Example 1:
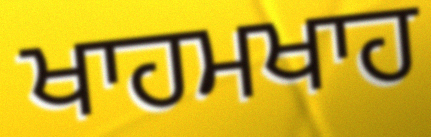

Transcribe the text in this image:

ਖਾਹਮਖਾਹ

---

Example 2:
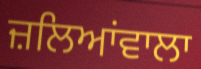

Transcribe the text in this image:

ਜ਼ਲਿਆਂਵਾਲਾ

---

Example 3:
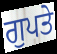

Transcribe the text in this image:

ਗੁਪਤੇ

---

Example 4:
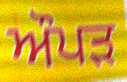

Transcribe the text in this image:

ਔਪੜ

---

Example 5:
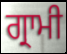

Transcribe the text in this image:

ਗ੍ਰਾਮੀ